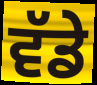
ਵੱਡੇ